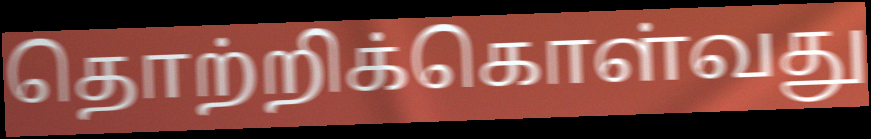
தொற்றிக்கொள்வது